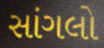
સાંગલો